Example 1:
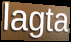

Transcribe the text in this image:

lagta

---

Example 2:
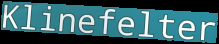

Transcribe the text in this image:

Klinefelter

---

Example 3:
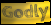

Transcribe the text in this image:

Godly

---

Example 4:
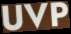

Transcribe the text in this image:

UVP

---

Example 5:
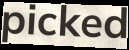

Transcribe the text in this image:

picked